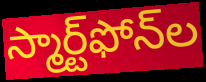
స్మార్ట్‌ఫోన్‌ల